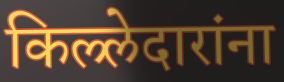
किल्लेदारांना